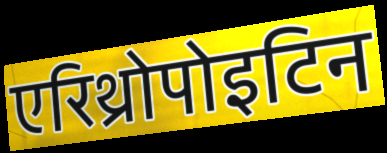
एरिथ्रोपोइटिन